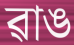
ৱাঙ